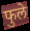
फुले